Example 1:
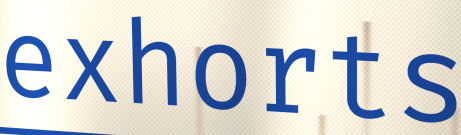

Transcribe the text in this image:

exhorts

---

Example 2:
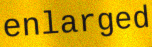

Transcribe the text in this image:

enlarged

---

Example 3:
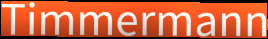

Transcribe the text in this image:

Timmermann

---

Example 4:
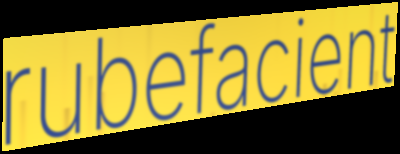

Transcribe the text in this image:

rubefacient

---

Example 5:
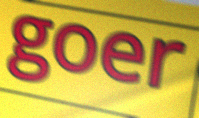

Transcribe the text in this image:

goer